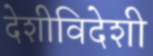
देशीविदेशी